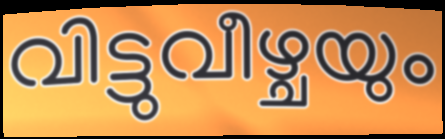
വിട്ടുവീഴ്ചയും